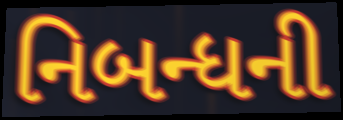
નિબન્ધની